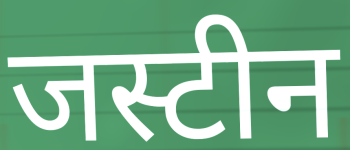
जस्टीन